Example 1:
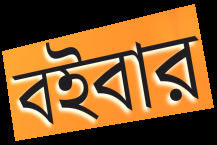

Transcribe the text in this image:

বইবার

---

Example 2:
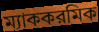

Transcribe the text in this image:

ম্যাককরমিক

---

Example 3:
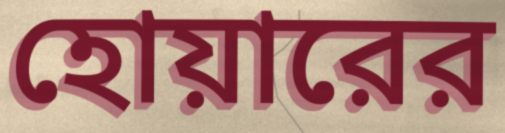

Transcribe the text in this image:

হোয়ারের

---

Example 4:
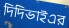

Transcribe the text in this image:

দিদিভাইএর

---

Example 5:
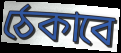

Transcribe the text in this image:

ঠেকাবে